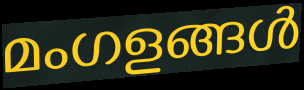
മംഗളങ്ങൾ